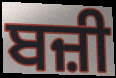
ਬਜ਼ੀ